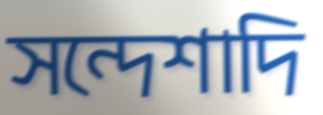
সন্দেশাদি